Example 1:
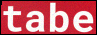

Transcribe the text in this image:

tabe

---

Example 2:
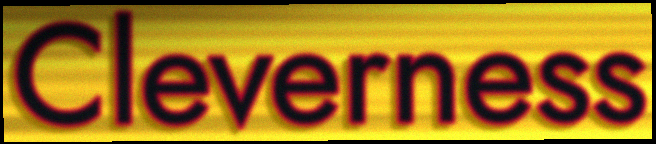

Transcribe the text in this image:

Cleverness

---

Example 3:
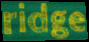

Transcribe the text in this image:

ridge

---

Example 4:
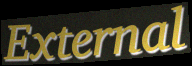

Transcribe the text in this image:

External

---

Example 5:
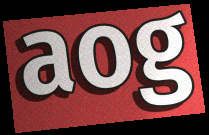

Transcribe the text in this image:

aog